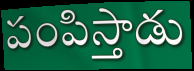
పంపిస్తాడు